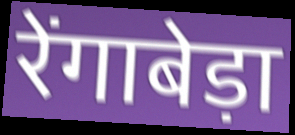
रेंगाबेड़ा